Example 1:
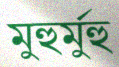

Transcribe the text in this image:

মুহুর্মুহু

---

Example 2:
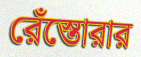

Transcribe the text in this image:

রেঁস্তোরার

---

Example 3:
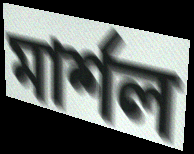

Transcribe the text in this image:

মার্শল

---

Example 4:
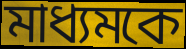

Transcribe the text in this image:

মাধ্যমকে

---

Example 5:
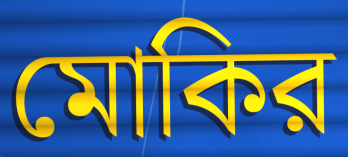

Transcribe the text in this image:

মোকির